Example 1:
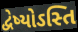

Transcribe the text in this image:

દ્વેષ્યોઽસ્તિ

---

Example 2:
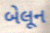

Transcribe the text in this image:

બેલૂન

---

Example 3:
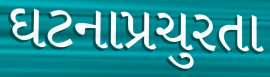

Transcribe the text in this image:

ઘટનાપ્રચુરતા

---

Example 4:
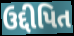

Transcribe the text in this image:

ઉદ્દીપિત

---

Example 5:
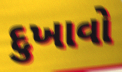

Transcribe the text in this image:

દુખાવો